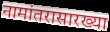
नामांतरासारख्या